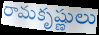
రామకృష్ణులు